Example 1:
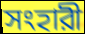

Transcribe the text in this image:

সংহারী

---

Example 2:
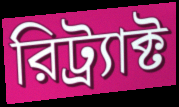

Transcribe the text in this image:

রিট্র্যাক্ট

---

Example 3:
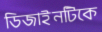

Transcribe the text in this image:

ডিজাইনটিকে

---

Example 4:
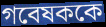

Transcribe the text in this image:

গবেষককে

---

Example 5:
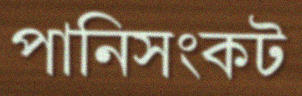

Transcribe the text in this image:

পানিসংকট